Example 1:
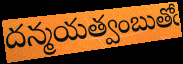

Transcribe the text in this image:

దన్మయత్వంబుతోఁ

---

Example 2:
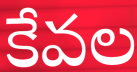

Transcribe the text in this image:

కేవల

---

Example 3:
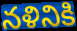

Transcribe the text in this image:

నళినికి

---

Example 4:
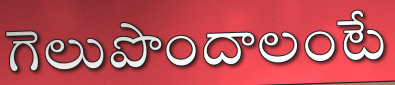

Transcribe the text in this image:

గెలుపొందాలంటే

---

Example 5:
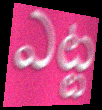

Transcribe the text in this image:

ఎట్ట